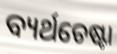
ବ୍ୟର୍ଥଚେଷ୍ଟା